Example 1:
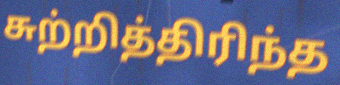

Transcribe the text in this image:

சுற்றித்திரிந்த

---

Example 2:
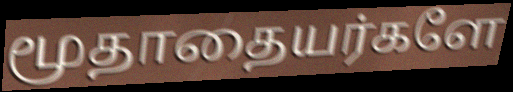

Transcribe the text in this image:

மூதாதையர்களே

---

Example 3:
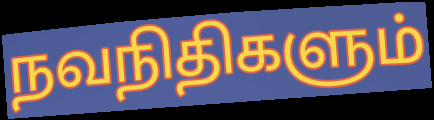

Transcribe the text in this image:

நவநிதிகளும்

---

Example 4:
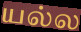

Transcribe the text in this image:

யல்ல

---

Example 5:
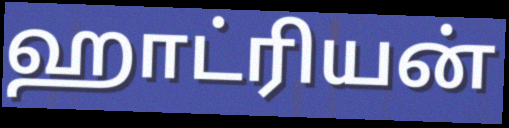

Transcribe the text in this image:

ஹாட்ரியன்